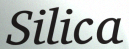
Silica